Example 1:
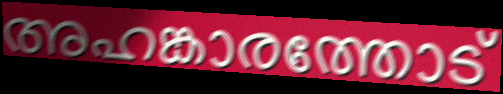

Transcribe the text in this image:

അഹങ്കാരത്തോട്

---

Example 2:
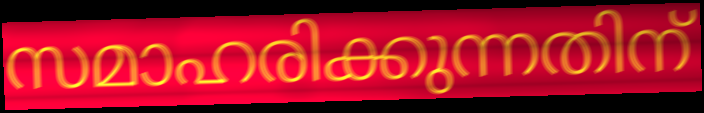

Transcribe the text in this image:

സമാഹരിക്കുന്നതിന്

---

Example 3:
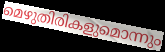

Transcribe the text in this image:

മെഴുതിരികളുമൊന്നും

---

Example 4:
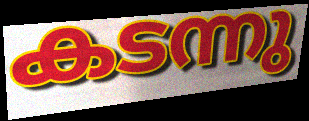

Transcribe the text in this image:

കടന്നു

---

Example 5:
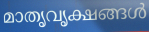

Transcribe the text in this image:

മാതൃവൃക്ഷങ്ങൾ